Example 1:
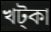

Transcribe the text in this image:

খট্কা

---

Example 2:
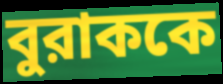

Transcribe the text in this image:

বুরাককে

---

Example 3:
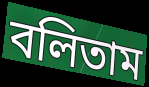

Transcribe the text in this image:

বলিতাম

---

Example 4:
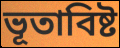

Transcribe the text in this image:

ভূতাবিষ্ট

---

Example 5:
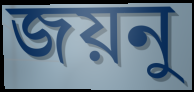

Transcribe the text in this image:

জয়নু